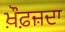
ਖ਼ੌਫ਼ਜ਼ਦਾ